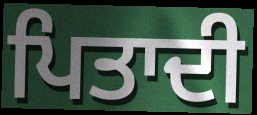
ਪਿਤਾਦੀ